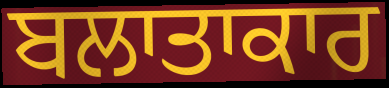
ਬਲਾਤਾਕਾਰ